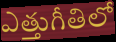
ఎత్తుగీతిలో